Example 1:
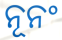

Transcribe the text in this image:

ନୂନଂ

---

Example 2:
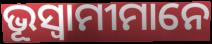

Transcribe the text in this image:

ଭୂସ୍ୱାମୀମାନେ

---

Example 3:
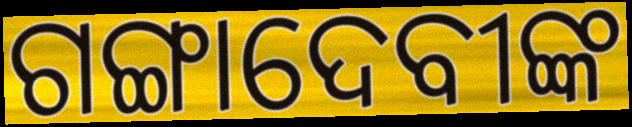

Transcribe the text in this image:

ଗଙ୍ଗାଦେବୀଙ୍କ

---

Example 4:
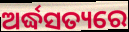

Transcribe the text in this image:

ଅର୍ଦ୍ଧସତ୍ୟରେ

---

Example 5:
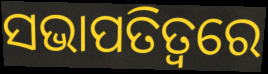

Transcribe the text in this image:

ସଭାପତିତ୍ଵରେ